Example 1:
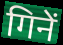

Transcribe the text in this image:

गिनें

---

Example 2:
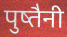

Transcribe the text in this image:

पुष्तैनी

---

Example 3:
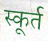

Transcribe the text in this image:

स्कूर्त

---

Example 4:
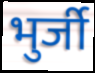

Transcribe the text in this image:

भुर्जी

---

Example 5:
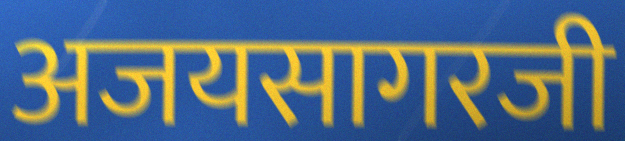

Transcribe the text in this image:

अजयसागरजी